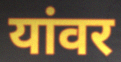
यांवर